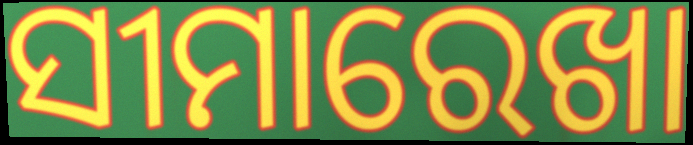
ସୀମାରେଖା